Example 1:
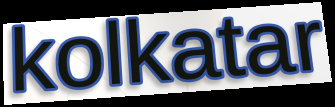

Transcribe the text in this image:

kolkatar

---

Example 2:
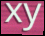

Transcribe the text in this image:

xy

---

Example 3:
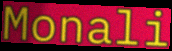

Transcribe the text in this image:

Monali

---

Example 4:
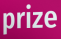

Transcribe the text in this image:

prize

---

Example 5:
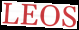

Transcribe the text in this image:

LEOS